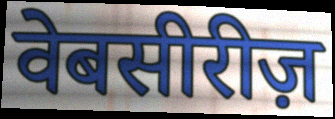
वेबसीरीज़